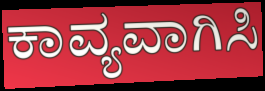
ಕಾವ್ಯವಾಗಿಸಿ